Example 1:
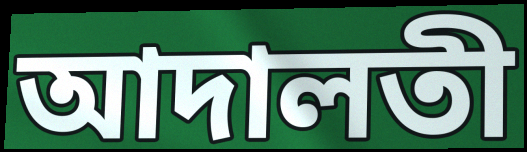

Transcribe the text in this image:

আদালতী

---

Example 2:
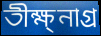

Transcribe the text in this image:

তীক্ষ্নাগ্র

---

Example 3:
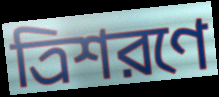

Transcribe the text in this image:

ত্রিশরণে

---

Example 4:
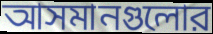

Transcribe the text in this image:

আসমানগুলোর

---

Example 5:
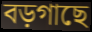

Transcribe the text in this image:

বড়গাছে